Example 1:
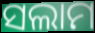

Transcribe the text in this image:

ସଲାମ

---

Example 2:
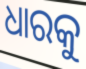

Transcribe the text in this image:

ଧାରକୁ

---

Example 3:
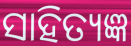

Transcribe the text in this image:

ସାହିତ୍ୟଜ୍ଞ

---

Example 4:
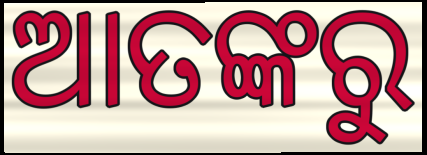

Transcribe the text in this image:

ଆତଙ୍କରୁ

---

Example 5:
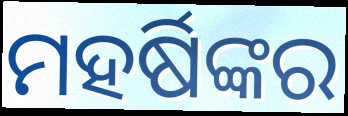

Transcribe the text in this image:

ମହର୍ଷିଙ୍କର